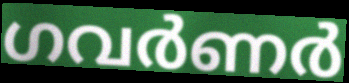
ഗവർണർ